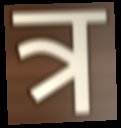
त्र